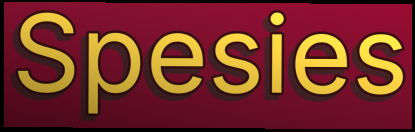
Spesies